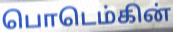
பொடெம்கின்